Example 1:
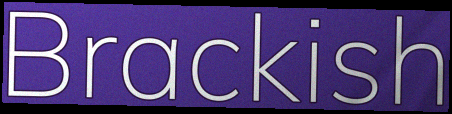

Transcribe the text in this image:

Brackish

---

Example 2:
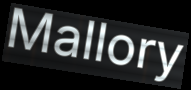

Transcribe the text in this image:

Mallory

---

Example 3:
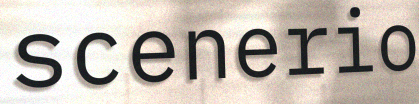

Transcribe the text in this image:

scenerio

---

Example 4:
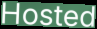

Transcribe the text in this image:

Hosted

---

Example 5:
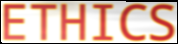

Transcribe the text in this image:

ETHICS